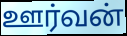
ஊர்வன்